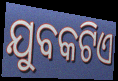
ଯୁବକଟିଏ